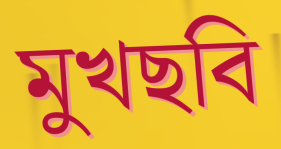
মুখছবি